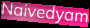
Naivedyam